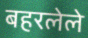
बहरलेले